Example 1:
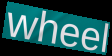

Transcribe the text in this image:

wheel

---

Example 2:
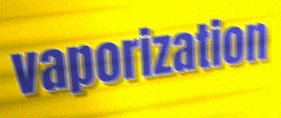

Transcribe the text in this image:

vaporization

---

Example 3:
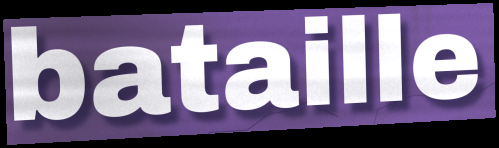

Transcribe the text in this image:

bataille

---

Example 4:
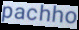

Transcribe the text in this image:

pachho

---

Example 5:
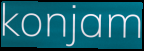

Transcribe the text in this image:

konjam